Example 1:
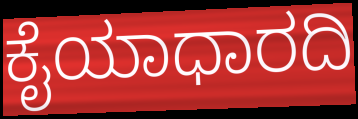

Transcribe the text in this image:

ಕೈಯಾಧಾರದಿ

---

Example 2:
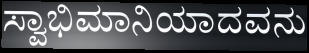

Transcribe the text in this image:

ಸ್ವಾಭಿಮಾನಿಯಾದವನು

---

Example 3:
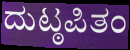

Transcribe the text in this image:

ದುಟ್ಠಪಿತಂ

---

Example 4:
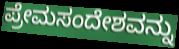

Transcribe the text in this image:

ಪ್ರೇಮಸಂದೇಶವನ್ನು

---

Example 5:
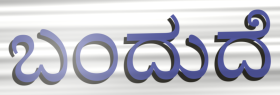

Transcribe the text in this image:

ಬಂದುದೆ